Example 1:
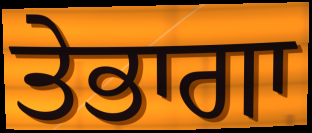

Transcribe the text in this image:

ਤੇਭਾਗਾ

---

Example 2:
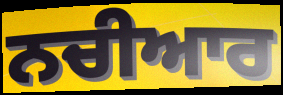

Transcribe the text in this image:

ਨਚੀਆਰ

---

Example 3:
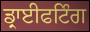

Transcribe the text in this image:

ਡ੍ਰਾਈਫਟਿੰਗ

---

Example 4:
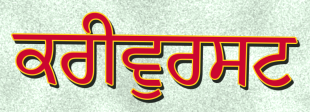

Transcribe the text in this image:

ਕਰੀਵੁਰਸਟ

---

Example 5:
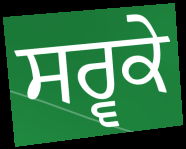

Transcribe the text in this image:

ਸਰ੍ਵਕੇ